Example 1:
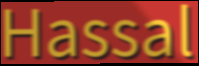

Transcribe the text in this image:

Hassal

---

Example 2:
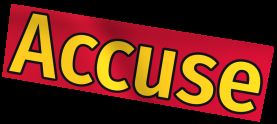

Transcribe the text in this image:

Accuse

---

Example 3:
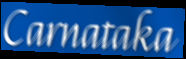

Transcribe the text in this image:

Carnataka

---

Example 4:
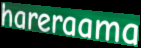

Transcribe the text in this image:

hareraama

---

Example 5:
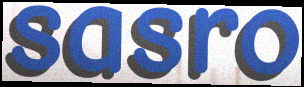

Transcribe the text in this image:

sasro